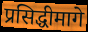
प्रसिद्धीमागे